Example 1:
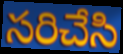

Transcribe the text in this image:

సరిచేసి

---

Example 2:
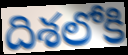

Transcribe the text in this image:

దిశలోకి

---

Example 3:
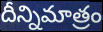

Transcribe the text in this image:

దీన్నిమాత్రం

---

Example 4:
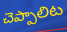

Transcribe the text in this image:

చెప్పాలిట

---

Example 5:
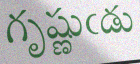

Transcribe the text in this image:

గృష్ణుఁడు